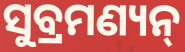
ସୁବ୍ରମଣ୍ୟନ୍